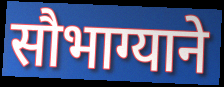
सौभाग्याने